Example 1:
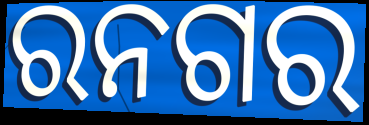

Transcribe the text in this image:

ରନଗର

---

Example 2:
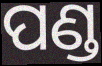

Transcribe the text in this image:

ପଣ୍ଡ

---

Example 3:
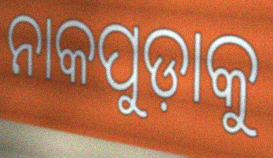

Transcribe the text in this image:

ନାକପୁଡ଼ାକୁ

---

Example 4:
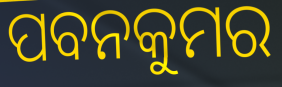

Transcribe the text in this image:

ପବନକୁମର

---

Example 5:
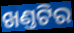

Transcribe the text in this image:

ଖଣ୍ତଟିର